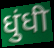
धुंधी